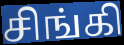
சிங்கி